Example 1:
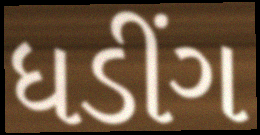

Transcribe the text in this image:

ધડીંગ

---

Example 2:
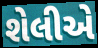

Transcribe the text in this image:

શેલીએ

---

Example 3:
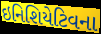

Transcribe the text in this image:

ઇનિશિયેટિવના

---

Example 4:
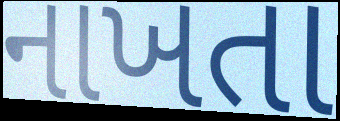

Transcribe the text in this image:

નાખતા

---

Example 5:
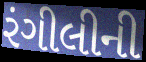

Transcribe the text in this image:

રંગીલીની